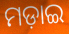
ମଡ଼ାଇ